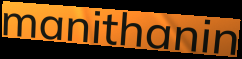
manithanin